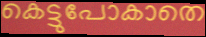
കെട്ടുപോകാതെ